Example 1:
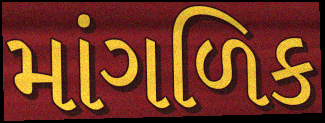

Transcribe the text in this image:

માંગળિક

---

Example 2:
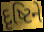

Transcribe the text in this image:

દૃષ્ટિને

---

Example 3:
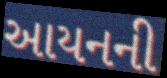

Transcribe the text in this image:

આયનની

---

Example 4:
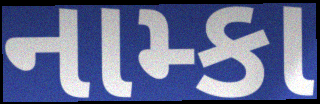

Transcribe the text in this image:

નામ્કા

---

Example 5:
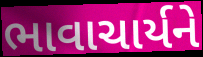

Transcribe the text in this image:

ભાવાચાર્યને